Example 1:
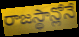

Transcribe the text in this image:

రాజస్థాన్లోనే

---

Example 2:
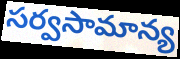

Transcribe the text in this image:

సర్వసామాన్య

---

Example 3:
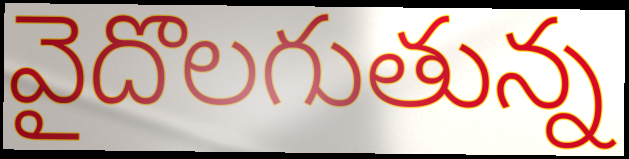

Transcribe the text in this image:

వైదొలగుతున్న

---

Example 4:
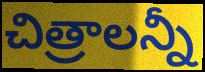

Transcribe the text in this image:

చిత్రాలన్నీ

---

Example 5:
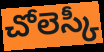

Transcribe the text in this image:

చోలెస్కీ